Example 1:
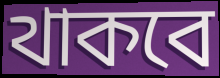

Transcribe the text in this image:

থাকবে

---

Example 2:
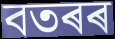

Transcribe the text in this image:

বতৰৰ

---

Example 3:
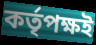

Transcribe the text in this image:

কৰ্তৃপক্ষই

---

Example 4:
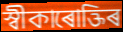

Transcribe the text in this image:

স্বীকাৰোক্তিৰ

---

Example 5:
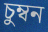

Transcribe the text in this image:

চুম্বন